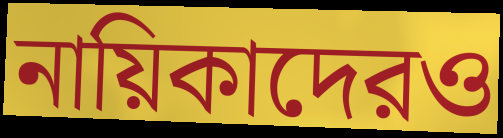
নায়িকাদেরও